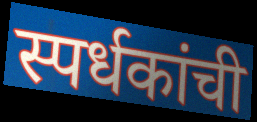
स्पर्धकांची